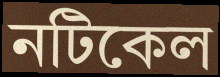
নটিকেল